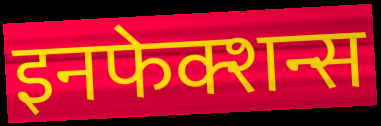
इनफेक्शन्स